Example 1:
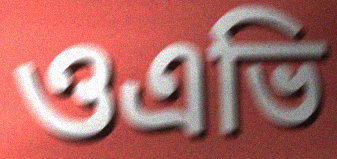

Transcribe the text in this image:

ওএভি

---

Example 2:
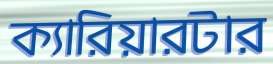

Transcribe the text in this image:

ক্যারিয়ারটার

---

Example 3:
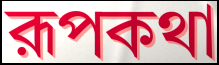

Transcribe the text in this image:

রূপকথা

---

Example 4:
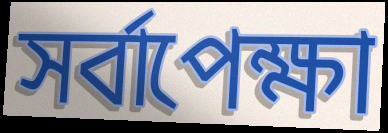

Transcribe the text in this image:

সর্বাপেক্ষা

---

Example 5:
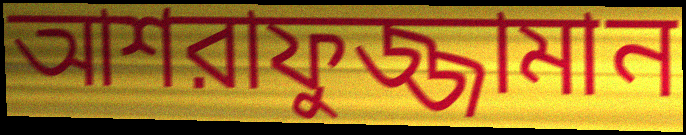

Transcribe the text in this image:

আশরাফুজ্জামান